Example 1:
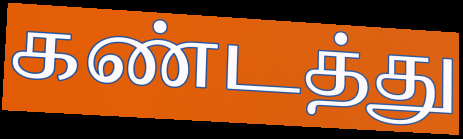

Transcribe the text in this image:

கண்டத்து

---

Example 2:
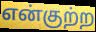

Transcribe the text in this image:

என்குற்ற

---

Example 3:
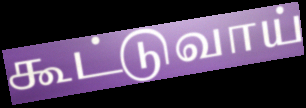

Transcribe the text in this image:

கூட்டுவாய்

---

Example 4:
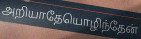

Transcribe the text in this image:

அறியாதேயொழிந்தேன்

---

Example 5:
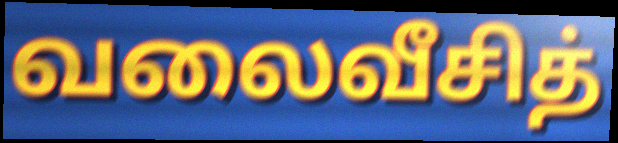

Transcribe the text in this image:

வலைவீசித்